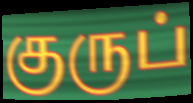
குருப்